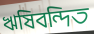
ঋষিবন্দিত